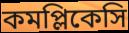
কমপ্লিকেসি